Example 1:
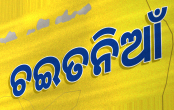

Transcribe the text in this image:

ଚଇତନିଆଁ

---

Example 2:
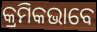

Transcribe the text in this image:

କ୍ରମିକଭାବେ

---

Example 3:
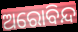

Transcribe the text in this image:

ଅରୋବିନ୍ଦ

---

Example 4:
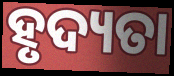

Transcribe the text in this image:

ହୃଦ୍ୟତା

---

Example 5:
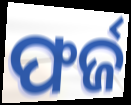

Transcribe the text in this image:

ଫର୍ଜ